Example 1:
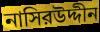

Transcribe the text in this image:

নাসিরউদ্দীন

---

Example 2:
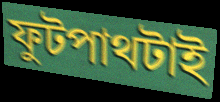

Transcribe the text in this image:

ফুটপাথটাই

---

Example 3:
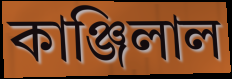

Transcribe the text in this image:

কাঞ্জিলাল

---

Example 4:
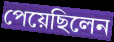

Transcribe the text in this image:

পেয়েছিলেন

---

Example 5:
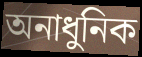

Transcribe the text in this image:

অনাধুনিক